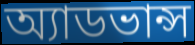
অ্যাডভান্স